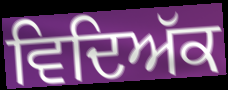
ਵਿਦਿਅੱਕ